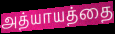
அத்யாயத்தை